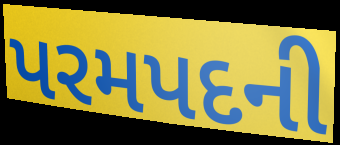
પરમપદની